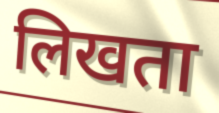
लिखता